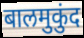
बालमुकुंद